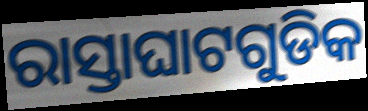
ରାସ୍ତାଘାଟଗୁଡିକ